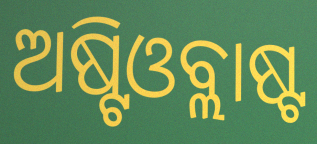
ଅଷ୍ଟିଓବ୍ଲାଷ୍ଟ